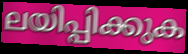
ലയിപ്പിക്കുക